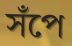
সঁপে